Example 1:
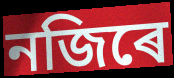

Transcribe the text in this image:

নজিৰে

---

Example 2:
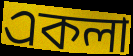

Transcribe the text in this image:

একলা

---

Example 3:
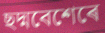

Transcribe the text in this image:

ছদ্মবেশেৰে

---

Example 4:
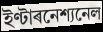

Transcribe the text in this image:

ইণ্টাৰনেশ্যনেল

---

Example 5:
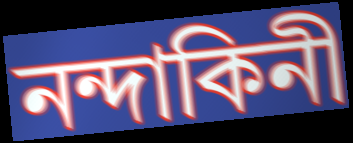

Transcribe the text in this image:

নন্দাকিনী